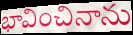
భావించినాను